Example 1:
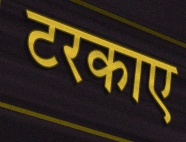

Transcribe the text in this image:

टरकाए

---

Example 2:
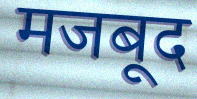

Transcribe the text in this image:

मजबूद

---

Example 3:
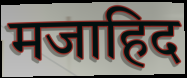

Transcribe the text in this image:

मजाहिद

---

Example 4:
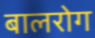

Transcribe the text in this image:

बालरोग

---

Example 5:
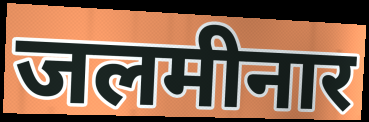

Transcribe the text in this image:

जलमीनार